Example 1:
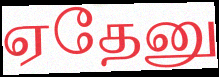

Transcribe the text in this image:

ஏதேனு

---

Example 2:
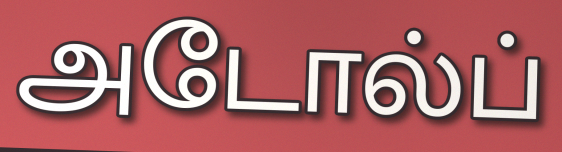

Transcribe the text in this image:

அடோல்ப்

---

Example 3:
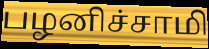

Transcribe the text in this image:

பழனிச்சாமி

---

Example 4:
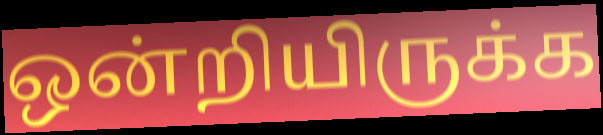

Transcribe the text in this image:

ஒன்றியிருக்க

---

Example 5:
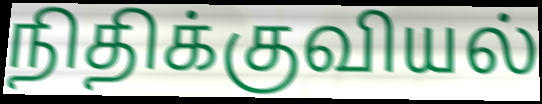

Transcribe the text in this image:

நிதிக்குவியல்